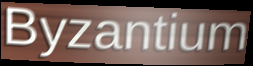
Byzantium